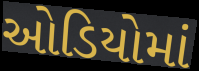
ઓડિયોમાં